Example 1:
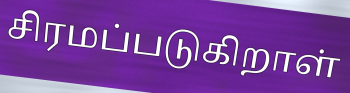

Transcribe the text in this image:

சிரமப்படுகிறாள்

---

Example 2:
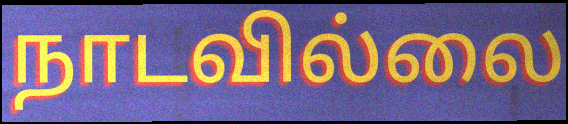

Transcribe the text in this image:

நாடவில்லை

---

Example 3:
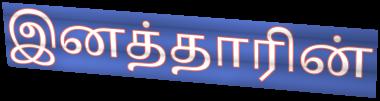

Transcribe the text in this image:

இனத்தாரின்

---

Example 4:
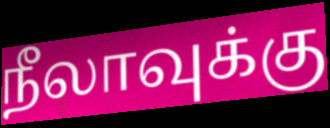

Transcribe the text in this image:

நீலாவுக்கு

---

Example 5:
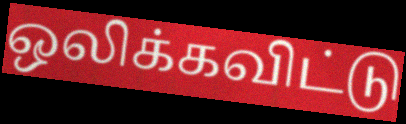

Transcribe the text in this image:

ஒலிக்கவிட்டு